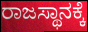
ರಾಜಸ್ಥಾನಕ್ಕೆ